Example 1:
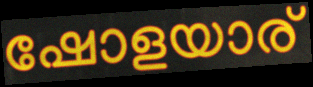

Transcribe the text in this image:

ഷോളയാര്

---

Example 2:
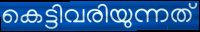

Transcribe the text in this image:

കെട്ടിവരിയുന്നത്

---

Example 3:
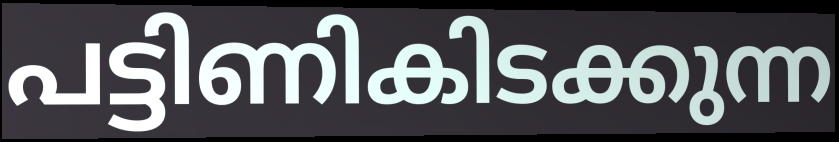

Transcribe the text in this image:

പട്ടിണികിടക്കുന്ന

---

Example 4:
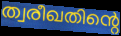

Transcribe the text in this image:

ത്വരീഖതിന്റെ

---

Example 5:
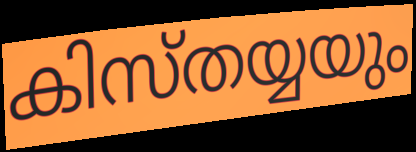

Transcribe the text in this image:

കിസ്തയ്യയും